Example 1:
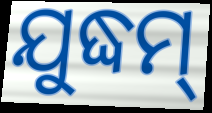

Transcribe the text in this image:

ଯୁଦ୍ଧମ୍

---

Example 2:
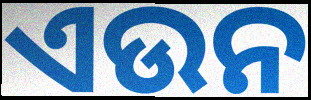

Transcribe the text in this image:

ଏଉନ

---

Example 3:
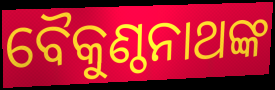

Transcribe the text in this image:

ବୈକୁଣ୍ଠନାଥଙ୍କ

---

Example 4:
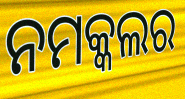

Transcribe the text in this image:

ନମକ୍କଲର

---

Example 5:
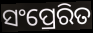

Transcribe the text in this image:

ସଂପ୍ରେରିତ